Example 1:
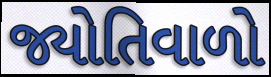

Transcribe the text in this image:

જ્યોતિવાળો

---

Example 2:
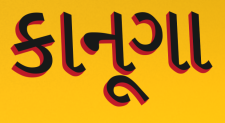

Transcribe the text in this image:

કાનૂગા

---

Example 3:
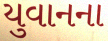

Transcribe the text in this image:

યુવાનના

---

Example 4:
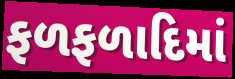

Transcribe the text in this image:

ફળફળાદિમાં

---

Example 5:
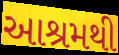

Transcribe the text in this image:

આશ્રમથી